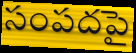
సంపదపై